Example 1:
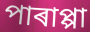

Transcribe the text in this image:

পাৰাপ্পা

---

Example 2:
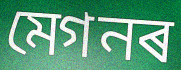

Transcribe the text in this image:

মেগনৰ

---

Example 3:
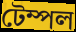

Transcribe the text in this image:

টেম্পল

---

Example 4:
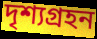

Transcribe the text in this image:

দৃশ্যগ্ৰহন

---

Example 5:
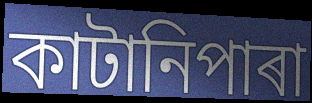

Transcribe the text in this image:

কাটানিপাৰা